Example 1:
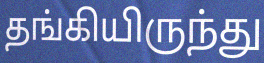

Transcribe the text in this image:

தங்கியிருந்து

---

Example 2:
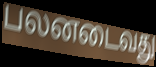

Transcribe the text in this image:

பலனடைவது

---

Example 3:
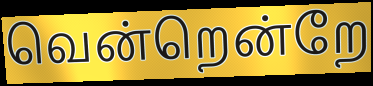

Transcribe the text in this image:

வென்றென்றே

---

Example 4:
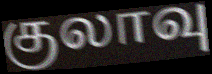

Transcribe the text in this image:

குலாவு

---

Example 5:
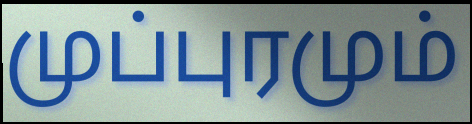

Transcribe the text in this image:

முப்புரமும்